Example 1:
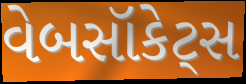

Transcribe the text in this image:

વેબસૉકેટ્સ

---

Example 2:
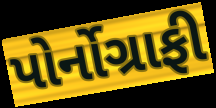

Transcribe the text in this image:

પોર્નોગ્રાફી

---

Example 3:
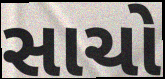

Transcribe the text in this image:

સાચો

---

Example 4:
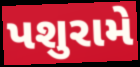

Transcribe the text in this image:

પશુરામે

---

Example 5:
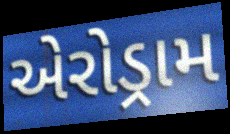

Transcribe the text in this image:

એરોડ્રામ